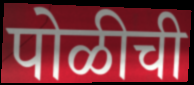
पोळीची